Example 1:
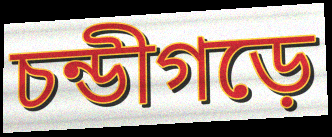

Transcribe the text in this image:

চন্ডীগড়ে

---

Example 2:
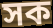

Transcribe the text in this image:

সক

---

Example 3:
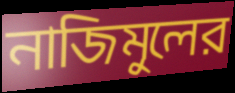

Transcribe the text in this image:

নাজিমুলের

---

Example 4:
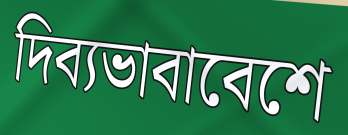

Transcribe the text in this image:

দিব্যভাবাবেশে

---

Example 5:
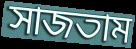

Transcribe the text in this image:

সাজতাম